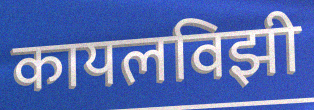
कायलविझी